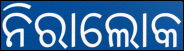
ନିରାଲୋକ